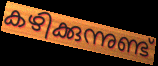
കഴിക്കുന്നുണ്ട്